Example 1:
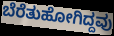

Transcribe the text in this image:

ಬೆರೆತುಹೋಗಿದ್ದವು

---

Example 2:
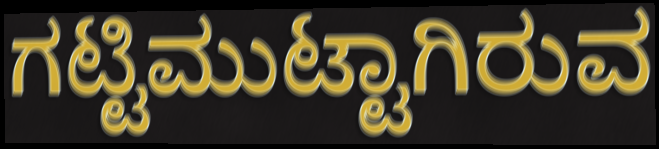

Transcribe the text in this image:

ಗಟ್ಟಿಮುಟ್ಟಾಗಿರುವ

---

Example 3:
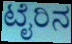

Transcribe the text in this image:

ಟೈರಿನ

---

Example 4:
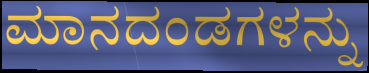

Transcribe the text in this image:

ಮಾನದಂಡಗಳನ್ನು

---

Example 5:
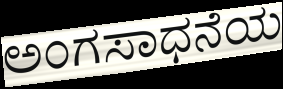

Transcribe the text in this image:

ಅಂಗಸಾಧನೆಯ